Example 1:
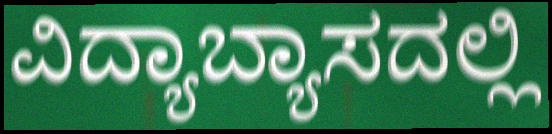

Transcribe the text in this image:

ವಿದ್ಯಾಬ್ಯಾಸದಲ್ಲಿ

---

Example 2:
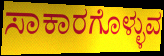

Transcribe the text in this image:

ಸಾಕಾರಗೊಳ್ಳುವ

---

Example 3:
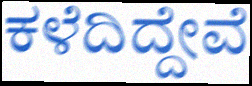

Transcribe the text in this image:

ಕಳೆದಿದ್ದೇವೆ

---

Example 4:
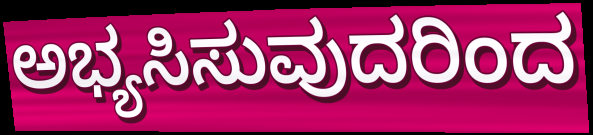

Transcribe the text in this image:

ಅಭ್ಯಸಿಸುವುದರಿಂದ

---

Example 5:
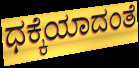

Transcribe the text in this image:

ಧಕ್ಕೆಯಾದಂತೆ